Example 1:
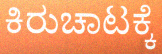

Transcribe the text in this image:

ಕಿರುಚಾಟಕ್ಕೆ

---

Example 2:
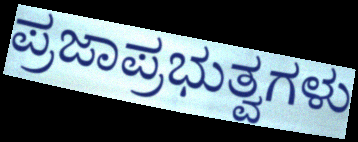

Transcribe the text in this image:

ಪ್ರಜಾಪ್ರಭುತ್ವಗಳು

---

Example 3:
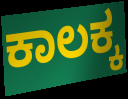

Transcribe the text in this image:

ಕಾಲಕ್ಕ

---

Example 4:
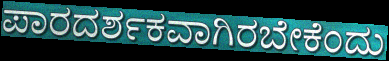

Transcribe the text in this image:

ಪಾರದರ್ಶಕವಾಗಿರಬೇಕೆಂದು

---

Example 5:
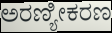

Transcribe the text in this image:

ಅರಣ್ಯೀಕರಣ